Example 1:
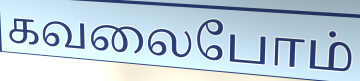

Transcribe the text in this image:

கவலைபோம்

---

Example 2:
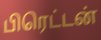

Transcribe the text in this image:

பிரெட்டன்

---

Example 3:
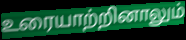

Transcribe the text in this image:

உரையாற்றினாலும்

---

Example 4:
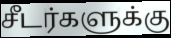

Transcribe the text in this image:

சீடர்களுக்கு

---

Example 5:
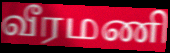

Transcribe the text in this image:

வீரமணி